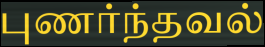
புணர்ந்தவல்